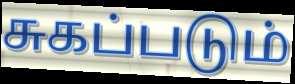
சுகப்படும்